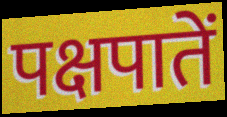
पक्षपातें